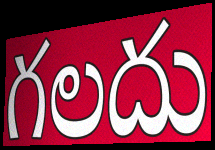
గలదు